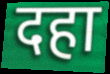
दहा